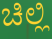
ಚಿಲ್ಲಿ